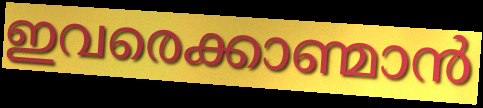
ഇവരെക്കാണ്മാൻ